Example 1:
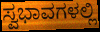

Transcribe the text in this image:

ಸ್ವಭಾವಗಳಲ್ಲಿ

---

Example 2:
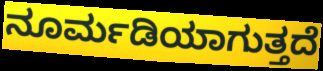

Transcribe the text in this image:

ನೂರ್ಮಡಿಯಾಗುತ್ತದೆ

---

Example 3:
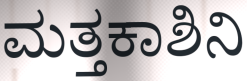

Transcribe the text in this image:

ಮತ್ತಕಾಶಿನಿ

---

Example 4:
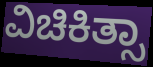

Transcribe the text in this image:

ವಿಚಿಕಿತ್ಸಾ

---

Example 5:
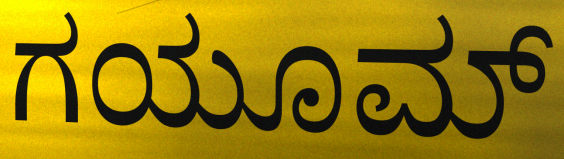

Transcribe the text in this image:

ಗಯೂಮ್